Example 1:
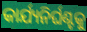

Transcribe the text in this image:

କାର୍ଯ୍ୟନିର୍ଘଣ୍ଟକୁ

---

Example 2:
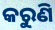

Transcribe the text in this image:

କରୁଣି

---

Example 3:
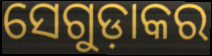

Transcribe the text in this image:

ସେଗୁଡ଼ାକର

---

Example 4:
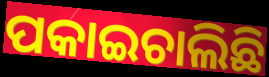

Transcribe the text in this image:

ପକାଇଚାଲିଛି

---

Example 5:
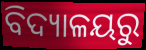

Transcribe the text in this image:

ବିଦ୍ୟାଳୟରୁ